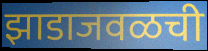
झाडाजवळची